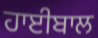
ਹਾਈਬਾਲ